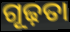
ଗୂଢ଼ତା